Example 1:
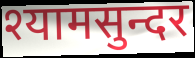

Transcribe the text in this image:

श्यामसुन्दर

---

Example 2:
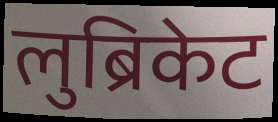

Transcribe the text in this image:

लुब्रिकेट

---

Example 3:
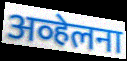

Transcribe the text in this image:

अव्हेलना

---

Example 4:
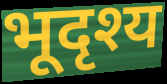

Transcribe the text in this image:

भूदृश्य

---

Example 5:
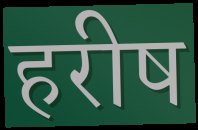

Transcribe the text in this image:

हरीष